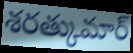
శరత్కుమార్